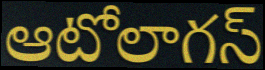
ఆటోలాగస్